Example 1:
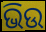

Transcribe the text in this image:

ଭିଉ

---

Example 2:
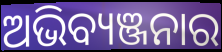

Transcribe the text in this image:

ଅଭିବ୍ୟଞ୍ଜନାର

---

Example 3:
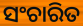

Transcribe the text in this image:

ସଂଚାରିତ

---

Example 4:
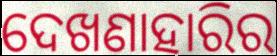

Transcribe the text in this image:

ଦେଖଣାହାରିର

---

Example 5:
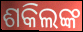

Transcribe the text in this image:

ଶକିଲଙ୍କ